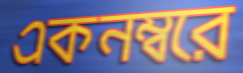
একনম্বরে